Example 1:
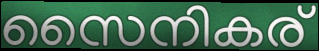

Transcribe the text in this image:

സൈനികര്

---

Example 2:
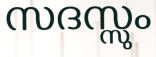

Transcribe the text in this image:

സദസ്സും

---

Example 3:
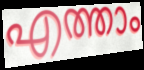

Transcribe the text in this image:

എത്താം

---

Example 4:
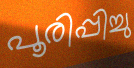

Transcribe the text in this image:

പൂരിപ്പിച്ചു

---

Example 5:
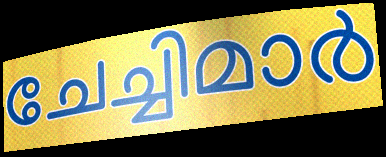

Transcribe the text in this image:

ചേച്ചിമാർ